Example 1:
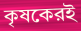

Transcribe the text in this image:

কৃষকেরই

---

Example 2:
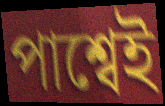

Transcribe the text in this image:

পাশ্বেই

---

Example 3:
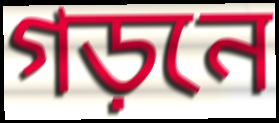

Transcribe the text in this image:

গড়নে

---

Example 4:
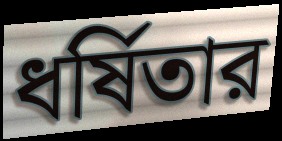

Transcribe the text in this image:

ধর্ষিতার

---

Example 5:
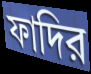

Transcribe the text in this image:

ফাদির